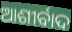
ଆଶୀର୍ବାଦ